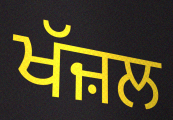
ਖੱਜ਼ਲ